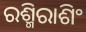
ରଶ୍ମିରାଶିଂ